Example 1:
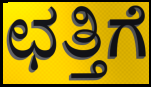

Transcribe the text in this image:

ಛತ್ತಿಗೆ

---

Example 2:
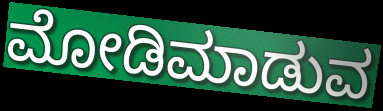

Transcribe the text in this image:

ಮೋಡಿಮಾಡುವ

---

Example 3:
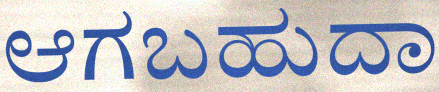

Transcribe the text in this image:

ಆಗಬಹುದಾ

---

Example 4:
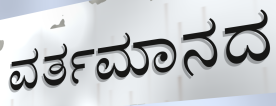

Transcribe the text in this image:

ವರ್ತಮಾನದ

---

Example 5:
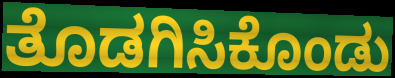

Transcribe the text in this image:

ತೊಡಗಿಸಿಕೊಂಡು